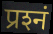
प्रश्‍नं